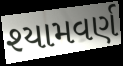
શ્યામવર્ણ